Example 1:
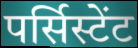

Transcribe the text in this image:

पर्सिस्टेंट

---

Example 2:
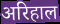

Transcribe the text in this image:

अरिहाल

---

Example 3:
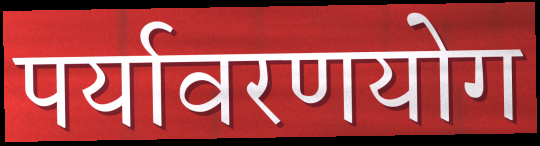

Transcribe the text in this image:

पर्यावरणयोग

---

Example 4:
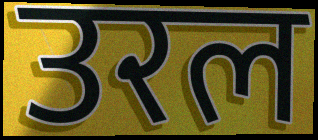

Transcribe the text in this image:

उरल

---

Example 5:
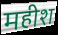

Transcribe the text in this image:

महीश